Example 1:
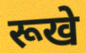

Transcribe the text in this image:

रूखे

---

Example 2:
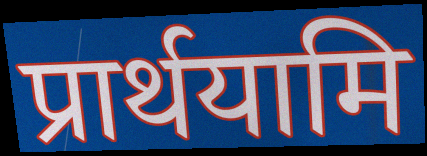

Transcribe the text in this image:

प्रार्थयामि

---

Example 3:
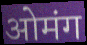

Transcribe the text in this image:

ओमंग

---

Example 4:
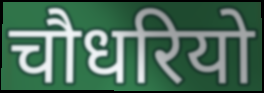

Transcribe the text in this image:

चौधरियो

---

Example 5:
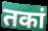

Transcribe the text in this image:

तकां